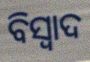
ବିସ୍ଵାଦ